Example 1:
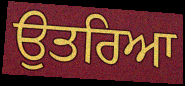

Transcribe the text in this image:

ਉਤਰਿਆ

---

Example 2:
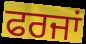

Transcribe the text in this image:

ਫਰਜਾਂ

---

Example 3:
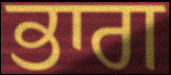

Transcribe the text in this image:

ਭਾਗ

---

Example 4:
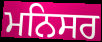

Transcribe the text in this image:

ਮਨਿਸਰ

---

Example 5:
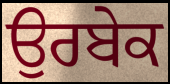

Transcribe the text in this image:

ਉਰਬੇਕ